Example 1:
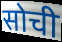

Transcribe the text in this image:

सोची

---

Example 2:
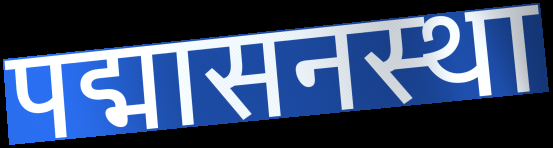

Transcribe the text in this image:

पद्मासनस्था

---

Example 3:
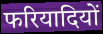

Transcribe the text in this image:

फरियादियों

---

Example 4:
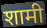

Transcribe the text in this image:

शामी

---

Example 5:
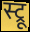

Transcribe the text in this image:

स्ट्रू